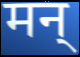
मन्